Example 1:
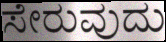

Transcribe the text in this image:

ಸೇರುವುದು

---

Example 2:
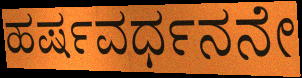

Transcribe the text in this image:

ಹರ್ಷವರ್ಧನನೇ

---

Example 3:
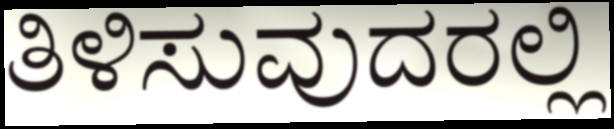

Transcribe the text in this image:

ತಿಳಿಸುವುದರಲ್ಲಿ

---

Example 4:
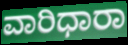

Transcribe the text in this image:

ವಾರಿಧಾರಾ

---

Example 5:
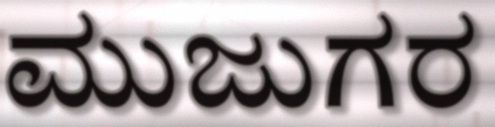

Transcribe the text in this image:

ಮುಜುಗರ